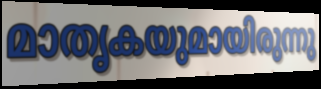
മാതൃകയുമായിരുന്നു